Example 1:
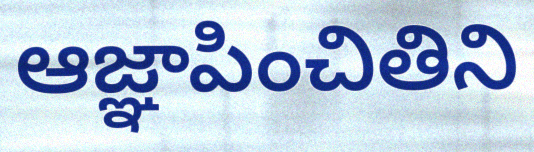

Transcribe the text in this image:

ఆజ్ఞాపించితిని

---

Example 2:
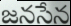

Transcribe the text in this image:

జనసేన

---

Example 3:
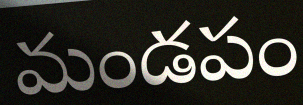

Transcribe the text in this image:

మండపం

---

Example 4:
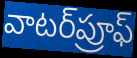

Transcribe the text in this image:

వాటర్‌ప్రూఫ్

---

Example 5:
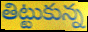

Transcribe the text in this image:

తిట్టుకున్న